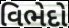
વિભેદો